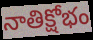
నాతిక్షోభం